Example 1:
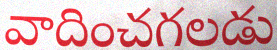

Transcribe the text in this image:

వాదించగలడు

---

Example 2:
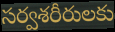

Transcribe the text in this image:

సర్వశరీరులకు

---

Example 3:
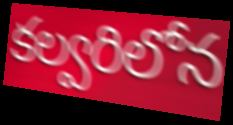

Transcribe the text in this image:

కల్వరిలోన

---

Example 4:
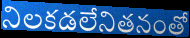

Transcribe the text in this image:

నిలకడలేనితనంతో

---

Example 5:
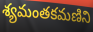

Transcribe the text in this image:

శ్యమంతకమణిని